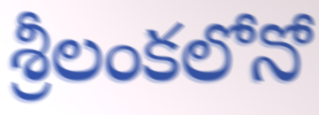
శ్రీలంకలోనో